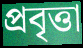
প্রবৃত্তা